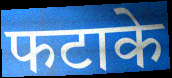
फटाके